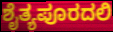
ಶೈತ್ಯಪೂರದಲಿ